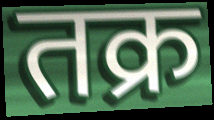
तक्र